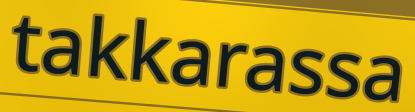
takkarassa